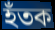
হঁতক